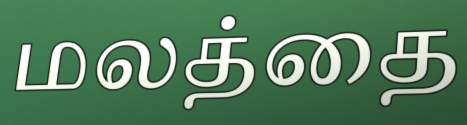
மலத்தை